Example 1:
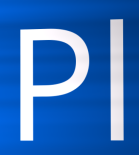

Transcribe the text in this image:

Pl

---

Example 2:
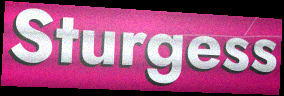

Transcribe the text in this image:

Sturgess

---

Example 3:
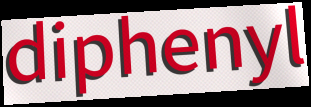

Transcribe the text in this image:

diphenyl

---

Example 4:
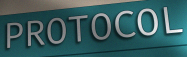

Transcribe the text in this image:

PROTOCOL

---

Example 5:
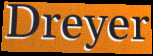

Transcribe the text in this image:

Dreyer